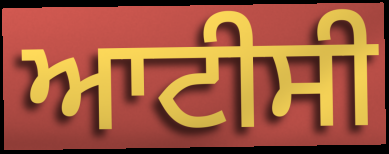
ਆਟੀਸੀ